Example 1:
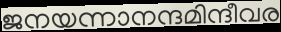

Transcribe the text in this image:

ജനയന്നാനന്ദമിന്ദീവര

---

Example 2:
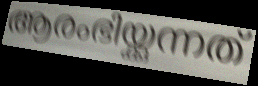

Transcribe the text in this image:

ആരംഭിയ്ക്കുന്നത്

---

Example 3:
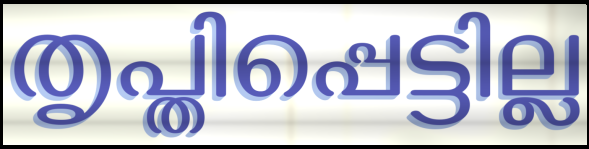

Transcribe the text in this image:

തൃപ്തിപ്പെട്ടില്ല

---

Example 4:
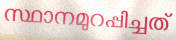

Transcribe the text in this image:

സ്ഥാനമുറപ്പിച്ചത്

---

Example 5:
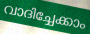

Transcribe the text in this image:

വാദിച്ചേക്കാം